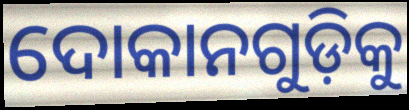
ଦୋକାନଗୁଡ଼ିକୁ